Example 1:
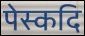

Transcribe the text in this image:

पेस्कदि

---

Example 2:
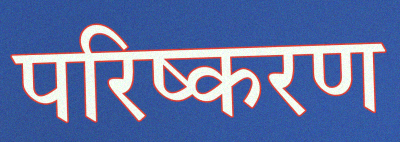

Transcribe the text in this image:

परिष्करण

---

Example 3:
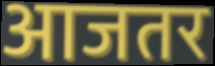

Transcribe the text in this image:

आजतर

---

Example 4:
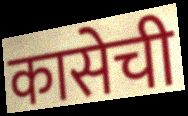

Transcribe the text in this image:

कासेची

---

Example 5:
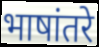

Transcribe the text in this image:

भाषांतरे